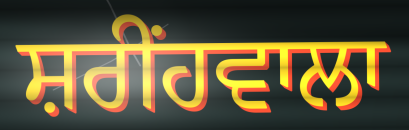
ਸ਼ਰੀਂਹਵਾਲਾ